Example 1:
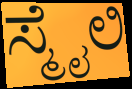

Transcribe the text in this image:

ಸ್ಮೈಲಿ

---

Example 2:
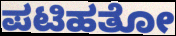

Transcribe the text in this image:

ಪಟಿಹತೋ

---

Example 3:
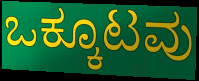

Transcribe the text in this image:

ಒಕ್ಕೂಟವು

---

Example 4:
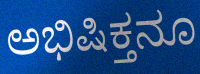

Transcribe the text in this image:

ಅಭಿಷಿಕ್ತನೂ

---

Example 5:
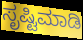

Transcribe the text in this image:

ಸೃಷ್ಟಿಮಾಡಿ